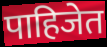
पाहिजेत